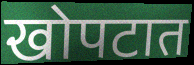
खोपटात